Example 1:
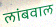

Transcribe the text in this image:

लांबवाल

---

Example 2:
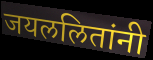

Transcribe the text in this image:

जयललितांनी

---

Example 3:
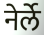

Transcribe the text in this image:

नेर्ले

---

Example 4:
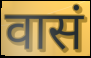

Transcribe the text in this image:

वासं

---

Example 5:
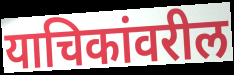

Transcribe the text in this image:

याचिकांवरील